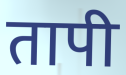
तापी